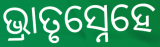
ଭ୍ରାତୃସ୍ନେହେ